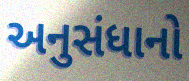
અનુસંધાનો